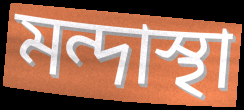
মন্দাস্থা